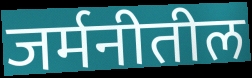
जर्मनीतील